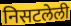
निसटलेली